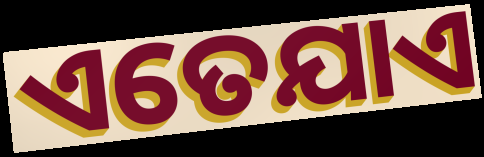
ଏତେଯାଏ